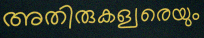
അതിരുകള്വരെയും